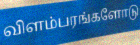
விளம்பரங்களோடு